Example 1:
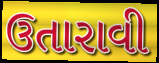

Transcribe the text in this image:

ઉતારાવી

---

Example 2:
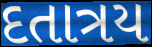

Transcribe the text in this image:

દતાત્રય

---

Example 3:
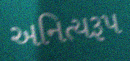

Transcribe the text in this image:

અનિત્યરૂપ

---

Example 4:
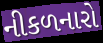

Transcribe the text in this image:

નીકળનારો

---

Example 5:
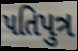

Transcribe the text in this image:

પતિપુત્ર